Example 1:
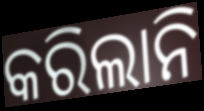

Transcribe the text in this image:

କରିଲାନି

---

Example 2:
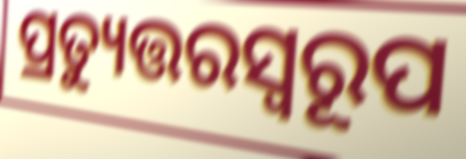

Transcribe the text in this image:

ପ୍ରତ୍ୟୁତ୍ତରସ୍ଵରୂପ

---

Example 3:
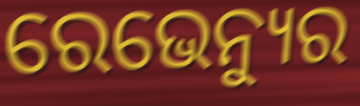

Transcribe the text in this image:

ରେଭେନ୍ୟୁର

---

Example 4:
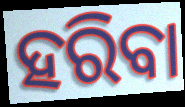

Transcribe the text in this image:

ହରିବା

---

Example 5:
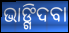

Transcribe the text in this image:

ଭାଙ୍ଗିଦବା